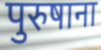
पुरुषाना